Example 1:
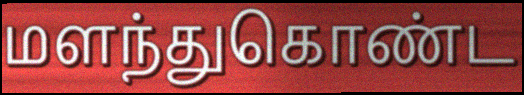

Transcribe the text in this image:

மளந்துகொண்ட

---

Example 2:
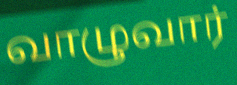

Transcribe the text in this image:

வாழுவார்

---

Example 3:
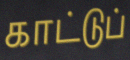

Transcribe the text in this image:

காட்டுப்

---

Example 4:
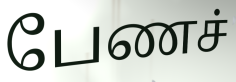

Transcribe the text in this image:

பேணச்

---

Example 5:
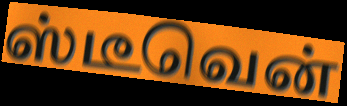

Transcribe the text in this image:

ஸ்டீவென்